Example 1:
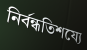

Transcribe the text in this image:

নির্বন্ধতিশয্যে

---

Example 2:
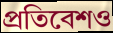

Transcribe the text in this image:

প্রতিবেশও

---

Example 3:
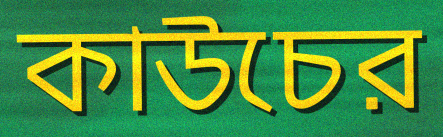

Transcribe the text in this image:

কাউচের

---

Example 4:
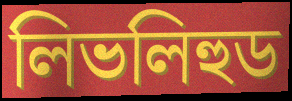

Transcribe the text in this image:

লিভলিহুড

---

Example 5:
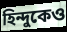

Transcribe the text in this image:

হিন্দুকেও